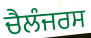
ਚੈਲੰਜਰਸ